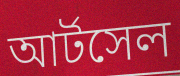
আর্টসেল